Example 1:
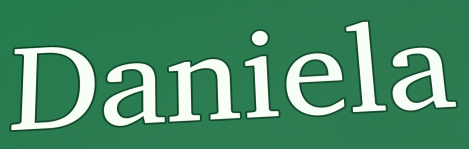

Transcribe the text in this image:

Daniela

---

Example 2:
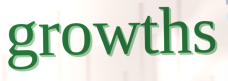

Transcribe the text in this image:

growths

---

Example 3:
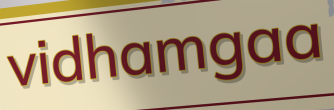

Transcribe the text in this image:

vidhamgaa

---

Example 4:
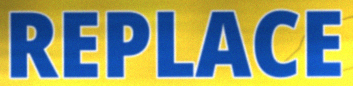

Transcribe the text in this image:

REPLACE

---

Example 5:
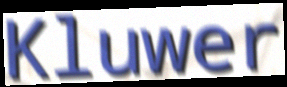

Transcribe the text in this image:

Kluwer